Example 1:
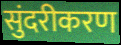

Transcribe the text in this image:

सुंदरीकरण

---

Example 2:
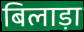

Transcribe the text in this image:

बिलाड़ा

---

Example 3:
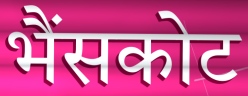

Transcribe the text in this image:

भैंसकोट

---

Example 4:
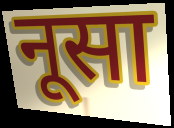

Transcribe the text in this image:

नूसा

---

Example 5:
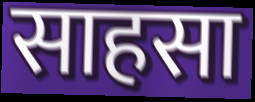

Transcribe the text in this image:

साहसा